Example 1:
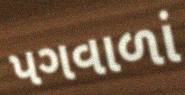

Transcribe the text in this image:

પગવાળાં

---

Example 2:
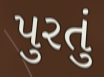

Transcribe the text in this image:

પુરતું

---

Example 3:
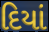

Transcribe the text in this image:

દિયાં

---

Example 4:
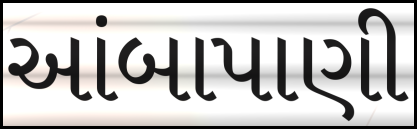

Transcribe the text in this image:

આંબાપાણી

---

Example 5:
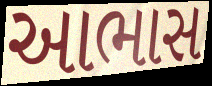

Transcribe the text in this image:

આભાસ